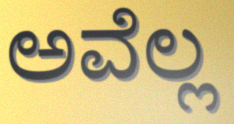
ಅವೆಲ್ಲ